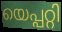
യെപ്പറ്റി